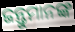
ଜନ୍ତୁମାନଙ୍କ